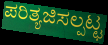
ಪರಿತ್ಯಜಿಸಲ್ಪಟ್ಟ